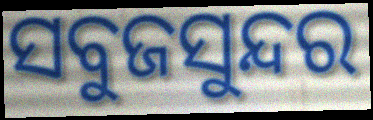
ସବୁଜସୁନ୍ଦର